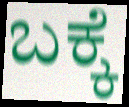
ಬಕ್ಕೆ